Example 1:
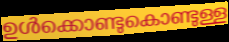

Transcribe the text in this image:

ഉൾക്കൊണ്ടുകൊണ്ടുള്ള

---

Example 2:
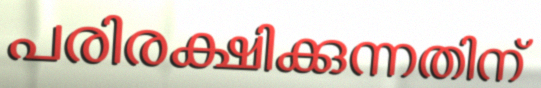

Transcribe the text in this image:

പരിരക്ഷിക്കുന്നതിന്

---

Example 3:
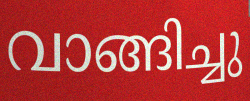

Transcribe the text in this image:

വാങ്ങിച്ചു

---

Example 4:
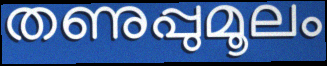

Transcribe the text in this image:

തണുപ്പുമൂലം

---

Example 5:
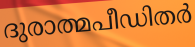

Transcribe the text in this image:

ദുരാത്മപീഡിതർ